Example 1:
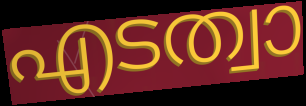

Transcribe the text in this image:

എടത്വാ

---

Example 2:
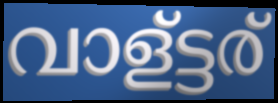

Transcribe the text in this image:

വാള്ട്ടര്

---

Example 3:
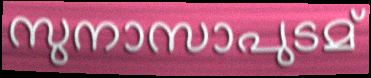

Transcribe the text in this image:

സുനാസാപുടമ്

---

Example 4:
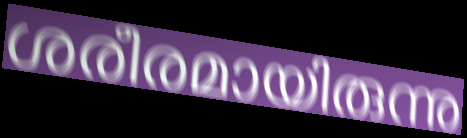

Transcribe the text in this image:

ശരീരമായിരുന്നു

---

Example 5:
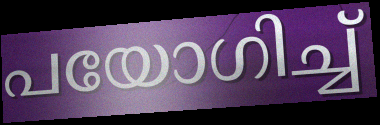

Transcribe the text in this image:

പയോഗിച്ച്